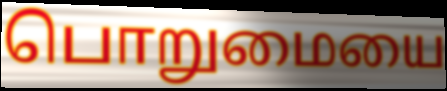
பொறுமையை